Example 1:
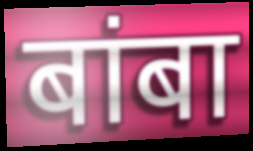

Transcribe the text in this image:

बांबा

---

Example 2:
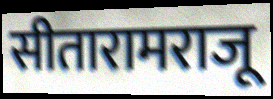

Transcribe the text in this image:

सीतारामराजू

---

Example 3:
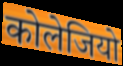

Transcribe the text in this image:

कोलेजियो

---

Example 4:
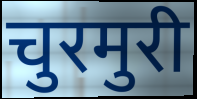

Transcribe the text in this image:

चुरमुरी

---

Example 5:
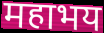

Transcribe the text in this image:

महाभय